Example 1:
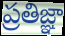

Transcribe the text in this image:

ప్రతిజ్ఞా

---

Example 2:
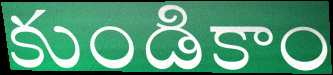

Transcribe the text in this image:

కుండికాం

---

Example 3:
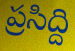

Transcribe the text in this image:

ప్రసిద్ది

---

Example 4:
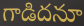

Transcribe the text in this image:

గాడిదనూ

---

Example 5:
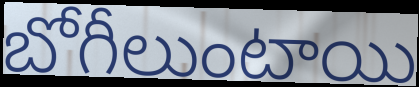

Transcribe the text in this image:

బోగీలుంటాయి